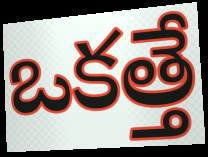
ఒకత్తే